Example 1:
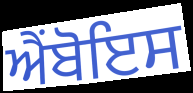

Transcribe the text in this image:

ਐਂਬੋਇਸ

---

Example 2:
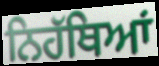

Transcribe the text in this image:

ਨਿਹੱਥਿਆਂ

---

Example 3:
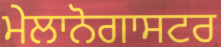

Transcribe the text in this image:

ਮੇਲਾਨੋਗਾਸਟਰ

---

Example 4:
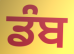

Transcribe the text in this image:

ਡੰਬ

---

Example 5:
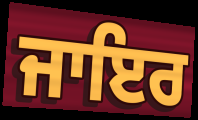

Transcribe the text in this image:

ਜਾਇਰ